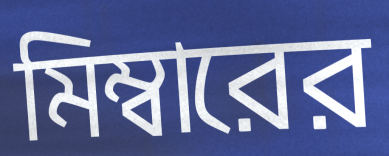
মিম্বারের